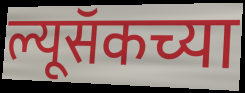
ल्यूसॅकच्या